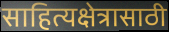
साहित्यक्षेत्रासाठी